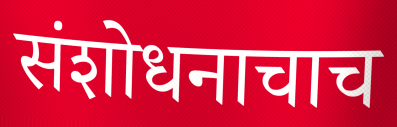
संशोधनाचाच